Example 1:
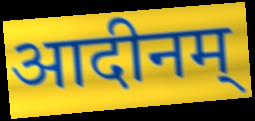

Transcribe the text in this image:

आदीनम्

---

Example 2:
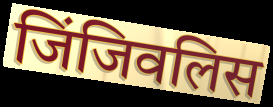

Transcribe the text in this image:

जिंजिवलिस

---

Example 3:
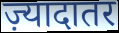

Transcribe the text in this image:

ज़्यादातर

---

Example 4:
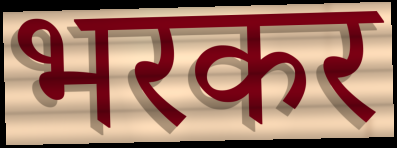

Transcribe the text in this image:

भरकर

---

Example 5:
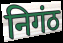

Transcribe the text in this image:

निगंठ